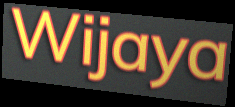
Wijaya